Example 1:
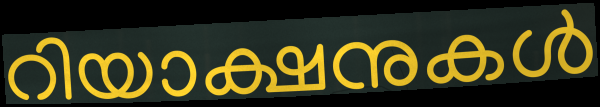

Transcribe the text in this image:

റിയാക്ഷനുകൾ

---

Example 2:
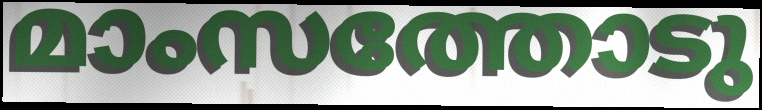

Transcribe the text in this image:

മാംസത്തോടു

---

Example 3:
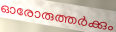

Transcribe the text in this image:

ഓരോരുത്തർക്കും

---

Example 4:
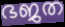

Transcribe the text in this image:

ഭജത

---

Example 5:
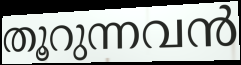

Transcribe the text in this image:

തൂറുന്നവൻ